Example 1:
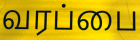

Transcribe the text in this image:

வரப்பை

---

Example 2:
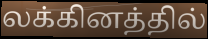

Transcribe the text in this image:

லக்கினத்தில்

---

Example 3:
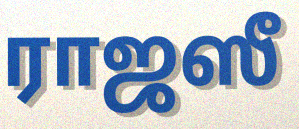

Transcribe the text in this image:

ராஜஸீ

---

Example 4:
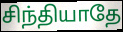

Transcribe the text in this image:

சிந்தியாதே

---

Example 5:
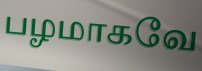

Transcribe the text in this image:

பழமாகவே